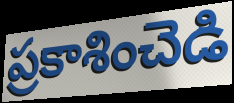
ప్రకాశించెడి